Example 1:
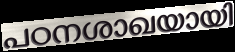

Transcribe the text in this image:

പഠനശാഖയായി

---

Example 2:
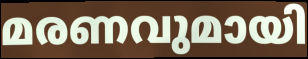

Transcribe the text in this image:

മരണവുമായി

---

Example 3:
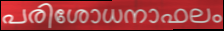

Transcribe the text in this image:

പരിശോധനാഫലം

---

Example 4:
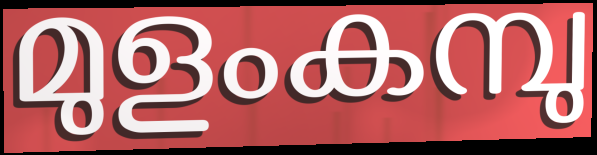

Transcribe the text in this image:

മുളംകമ്പു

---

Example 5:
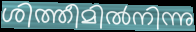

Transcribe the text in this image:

ശിത്തീമിൽനിന്നു